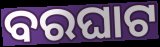
ବରଘାଟ